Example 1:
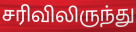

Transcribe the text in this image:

சரிவிலிருந்து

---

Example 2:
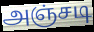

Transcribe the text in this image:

அஞ்சடி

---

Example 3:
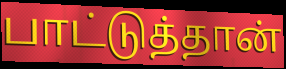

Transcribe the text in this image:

பாட்டுத்தான்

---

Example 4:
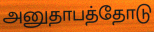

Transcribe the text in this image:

அனுதாபத்தோடு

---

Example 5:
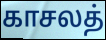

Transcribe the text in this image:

காசலத்